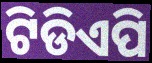
ଟିଡିଏପି